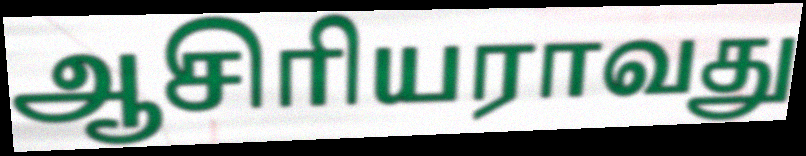
ஆசிரியராவது